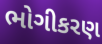
ભોગીકરણ